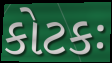
કોટકઃ